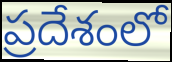
ప్రదేశంలో